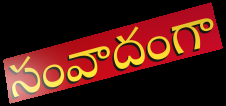
సంవాదంగా